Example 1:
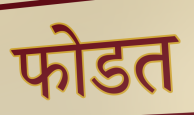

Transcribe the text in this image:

फोडत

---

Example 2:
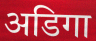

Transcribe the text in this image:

अडिगा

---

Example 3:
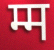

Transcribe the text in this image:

म्म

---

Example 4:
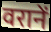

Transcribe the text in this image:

वरानें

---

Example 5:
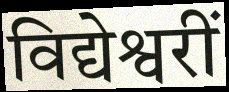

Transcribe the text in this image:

विद्येश्वरीं